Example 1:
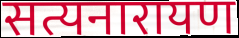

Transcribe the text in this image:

सत्यनारायण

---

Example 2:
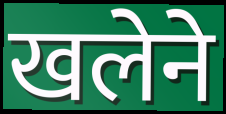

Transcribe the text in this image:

खलेने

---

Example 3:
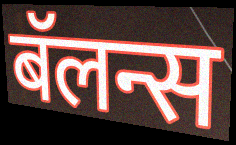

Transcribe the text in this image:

बॅलन्स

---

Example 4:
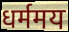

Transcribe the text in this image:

धर्ममय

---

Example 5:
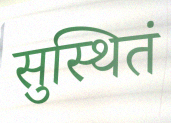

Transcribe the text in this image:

सुस्थितं